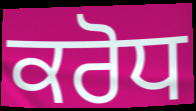
ਕਰੋਧ